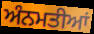
ਅੰਨਮਤੀਆਂ